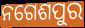
ନଗେଶପୁର